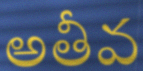
అతీవ